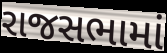
રાજસભામાં